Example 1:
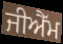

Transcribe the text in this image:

ਜੀਐੱਮ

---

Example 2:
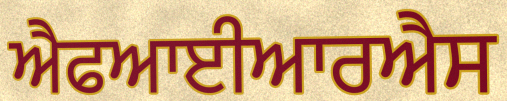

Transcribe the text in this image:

ਐਫਆਈਆਰਐਸ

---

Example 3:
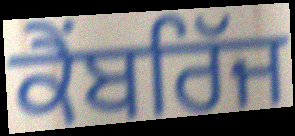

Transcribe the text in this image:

ਕੈਂਬਰਿੱਜ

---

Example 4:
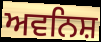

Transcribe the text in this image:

ਅਵਨਿਸ਼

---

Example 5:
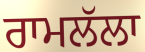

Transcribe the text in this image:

ਰਾਮਲੱਲਾ